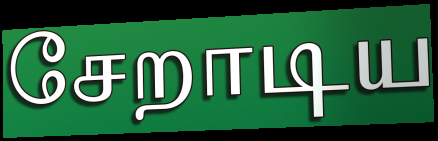
சேறாடிய